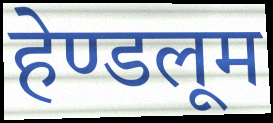
हेण्डलूम